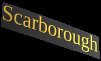
Scarborough